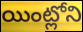
యింట్లోని